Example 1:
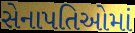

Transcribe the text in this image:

સેનાપતિઓમાં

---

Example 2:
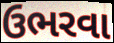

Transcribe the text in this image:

ઉભરવા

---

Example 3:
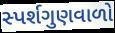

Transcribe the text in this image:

સ્પર્શગુણવાળો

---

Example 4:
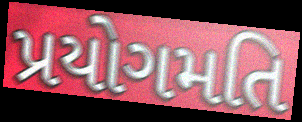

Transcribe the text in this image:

પ્રયોગમતિ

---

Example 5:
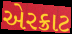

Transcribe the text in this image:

એરક્રાટ